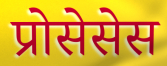
प्रोसेसेस